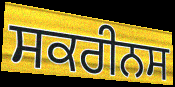
ਸਕਰੀਨਸ